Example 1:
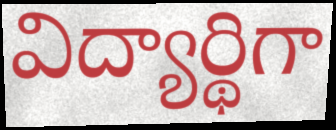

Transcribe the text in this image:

విద్యార్థిగా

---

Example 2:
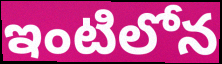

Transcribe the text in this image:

ఇంటిలోన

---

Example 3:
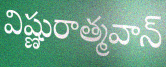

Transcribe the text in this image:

విష్ణురాత్మవాన్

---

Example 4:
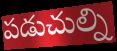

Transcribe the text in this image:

పడుచుల్ని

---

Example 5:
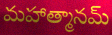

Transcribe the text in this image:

మహాత్మానమ్